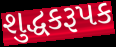
શુદ્ધકરૂપક